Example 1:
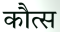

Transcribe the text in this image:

कौत्स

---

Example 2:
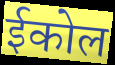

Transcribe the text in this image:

ईकोल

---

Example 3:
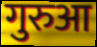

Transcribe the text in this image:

गुरुआ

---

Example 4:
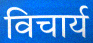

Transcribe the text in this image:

विचार्य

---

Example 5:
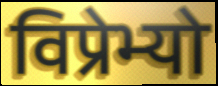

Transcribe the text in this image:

विप्रेभ्यो